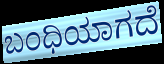
ಬಂಧಿಯಾಗದೆ